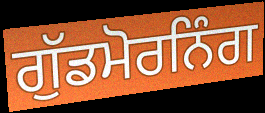
ਗੁੱਡਮੋਰਨਿੰਗ